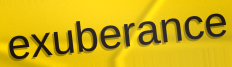
exuberance